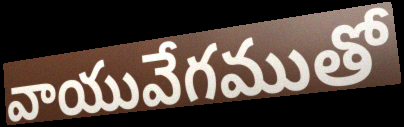
వాయువేగముతో